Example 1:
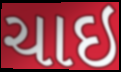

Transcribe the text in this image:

ચાઇ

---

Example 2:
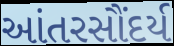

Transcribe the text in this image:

આંતરસૌંદર્ય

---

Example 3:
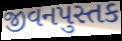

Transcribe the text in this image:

જીવનપુસ્તક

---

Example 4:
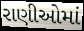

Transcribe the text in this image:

રાણીઓમાં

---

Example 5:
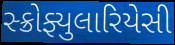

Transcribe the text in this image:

સ્ક્રોફ્યુલારિયેસી